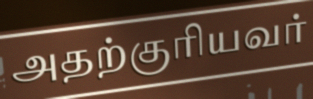
அதற்குரியவர்